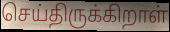
செய்திருக்கிறாள்